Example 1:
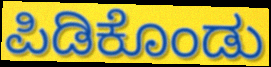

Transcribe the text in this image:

ಪಿಡಿಕೊಂಡು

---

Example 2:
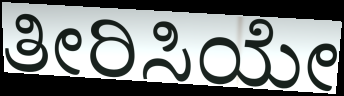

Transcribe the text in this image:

ತೀರಿಸಿಯೇ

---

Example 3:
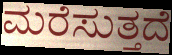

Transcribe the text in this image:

ಮರೆಸುತ್ತದೆ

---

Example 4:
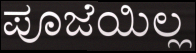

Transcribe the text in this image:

ಪೂಜೆಯಿಲ್ಲ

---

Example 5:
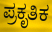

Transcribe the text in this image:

ಪ್ರಕೃತಿಕ